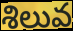
శిలువ